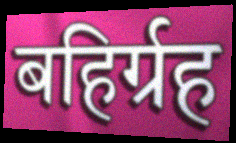
बहिर्ग्रह